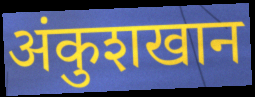
अंकुशखान